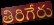
తిరిగేరు